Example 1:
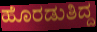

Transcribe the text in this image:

ಹೊರಡುತಿದ್ದ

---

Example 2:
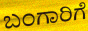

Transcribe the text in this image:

ಬಂಗಾರಿಗೆ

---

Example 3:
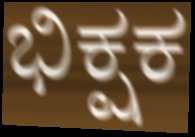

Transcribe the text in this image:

ಭಿಕ್ಷಕ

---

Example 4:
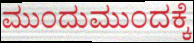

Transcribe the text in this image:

ಮುಂದುಮುಂದಕ್ಕೆ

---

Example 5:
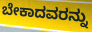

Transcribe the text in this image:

ಬೇಕಾದವರನ್ನು